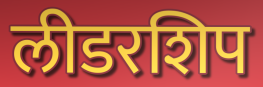
लीडरशिप